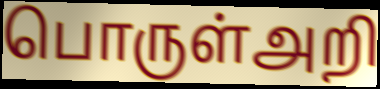
பொருள்அறி